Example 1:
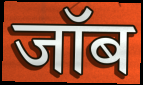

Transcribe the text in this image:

जॉब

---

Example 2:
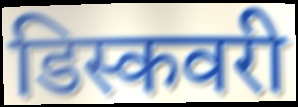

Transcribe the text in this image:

डिस्कवरी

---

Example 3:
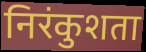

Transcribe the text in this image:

निरंकुशता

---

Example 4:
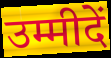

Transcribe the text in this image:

उम्मीदें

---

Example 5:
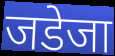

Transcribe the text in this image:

जडेजा